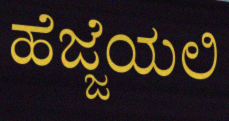
ಹೆಜ್ಜೆಯಲಿ